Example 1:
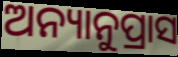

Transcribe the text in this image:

ଅନ୍ୟାନୁପ୍ରାସ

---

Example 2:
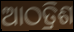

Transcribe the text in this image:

ଆଠତ୍ରିଶ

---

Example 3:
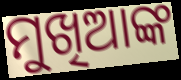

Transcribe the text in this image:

ମୁଖିଆଙ୍କ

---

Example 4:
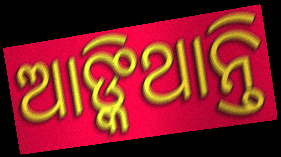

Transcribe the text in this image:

ଆଙ୍କିଥାନ୍ତି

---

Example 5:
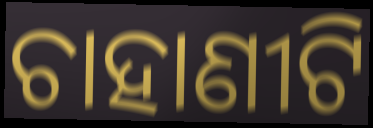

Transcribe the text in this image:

ଚାହାଣୀଟି